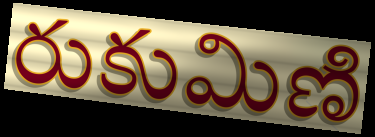
రుకుమిణి